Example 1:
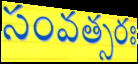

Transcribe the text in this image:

సంవత్సరః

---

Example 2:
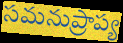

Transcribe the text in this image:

సమనుప్రాప్య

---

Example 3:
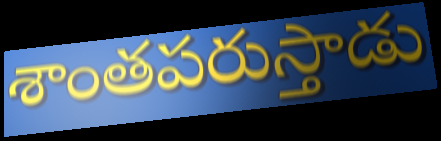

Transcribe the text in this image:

శాంతపరుస్తాడు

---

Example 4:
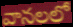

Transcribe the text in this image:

వానలలో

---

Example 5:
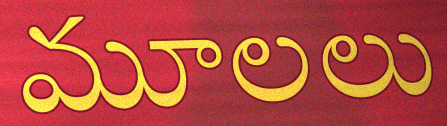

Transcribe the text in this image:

మూలలు